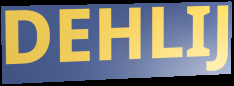
DEHLIJ